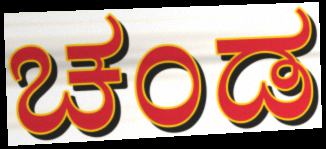
ಚಂಡ